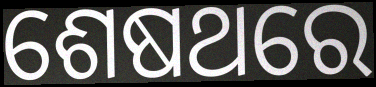
ଶେଷଥରେ